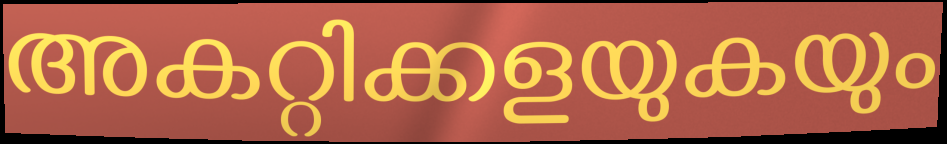
അകറ്റിക്കളയുകയും